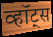
व्हॉट्‌स